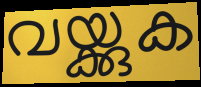
വയ്ക്കുക